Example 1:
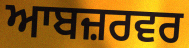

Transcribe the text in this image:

ਆਬਜ਼ਰਵਰ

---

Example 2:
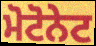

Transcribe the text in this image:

ਮੋਟੋਨੇਟ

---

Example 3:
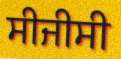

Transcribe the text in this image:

ਸੀਜੀਸੀ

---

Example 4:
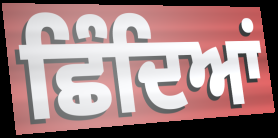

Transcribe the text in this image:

ਛਿੰਦਿਆਂ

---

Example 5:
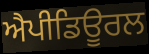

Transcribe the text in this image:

ਐਪੀਡਿਊਰਲ